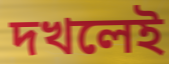
দখলেই